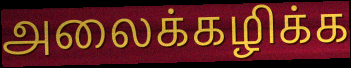
அலைக்கழிக்க